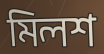
মিলশ